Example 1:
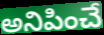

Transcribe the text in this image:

అనిపించే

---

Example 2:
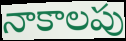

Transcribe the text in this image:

నాకాలపు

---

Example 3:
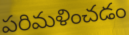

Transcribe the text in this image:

పరిమళించడం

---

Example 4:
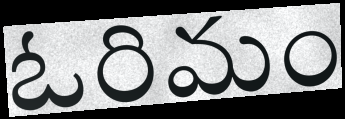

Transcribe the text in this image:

ఓరిమం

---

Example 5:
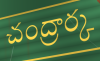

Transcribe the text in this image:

చంద్రార్క